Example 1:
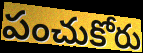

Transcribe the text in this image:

పంచుకోరు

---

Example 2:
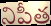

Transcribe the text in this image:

నిపీత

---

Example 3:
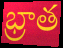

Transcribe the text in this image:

భ్రాత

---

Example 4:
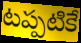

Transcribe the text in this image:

టప్పటికే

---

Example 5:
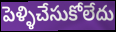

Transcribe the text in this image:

పెళ్ళిచేసుకోలేదు